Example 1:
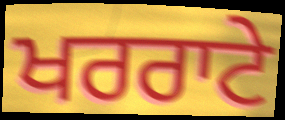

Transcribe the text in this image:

ਖਰਰਾਟੇ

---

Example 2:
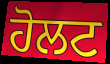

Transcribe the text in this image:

ਹੋਲਟ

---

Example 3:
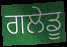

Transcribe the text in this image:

ਗਲੇਡੂ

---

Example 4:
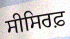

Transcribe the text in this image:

ਸੀਸਿਰਫ਼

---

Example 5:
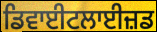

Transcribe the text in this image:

ਡਿਵਾਈਟਲਾਈਜ਼ਡ